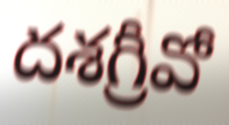
దశగ్రీవో